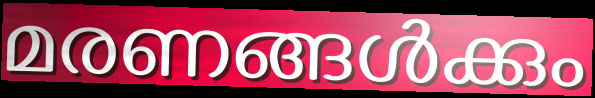
മരണങ്ങൾക്കും